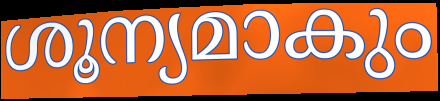
ശൂന്യമാകും